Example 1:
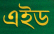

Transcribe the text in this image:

এইড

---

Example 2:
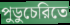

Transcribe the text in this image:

পুডুচেরিতে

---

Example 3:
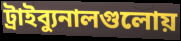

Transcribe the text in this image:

ট্রাইব্যুনালগুলোয়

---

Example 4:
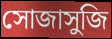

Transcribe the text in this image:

সোজাসুজি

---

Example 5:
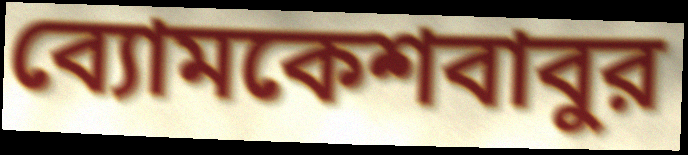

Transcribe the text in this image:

ব্যোমকেশবাবুর